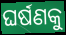
ଘର୍ଷଣକୁ